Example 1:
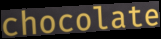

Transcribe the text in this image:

chocolate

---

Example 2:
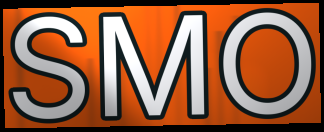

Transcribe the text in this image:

SMO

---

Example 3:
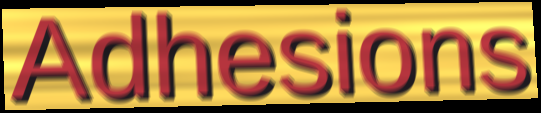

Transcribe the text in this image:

Adhesions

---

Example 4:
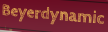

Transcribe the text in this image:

Beyerdynamic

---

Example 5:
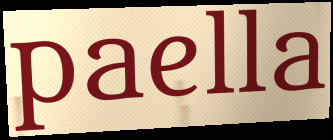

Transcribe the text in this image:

paella